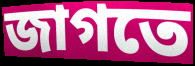
জাগতে